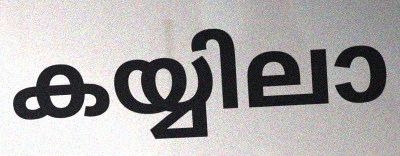
കയ്യിലാ